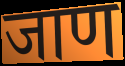
जाण